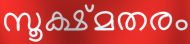
സൂക്ഷ്മതരം